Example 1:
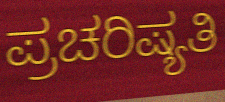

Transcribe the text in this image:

ಪ್ರಚರಿಷ್ಯತಿ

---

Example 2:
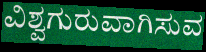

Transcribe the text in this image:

ವಿಶ್ವಗುರುವಾಗಿಸುವ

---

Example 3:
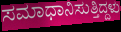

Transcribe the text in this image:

ಸಮಾಧಾನಿಸುತ್ತಿದ್ದಳು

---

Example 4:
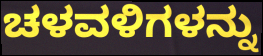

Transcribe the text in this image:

ಚಳವಳಿಗಳನ್ನು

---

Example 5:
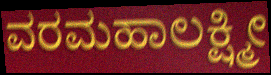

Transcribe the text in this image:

ವರಮಹಾಲಕ್ಷ್ಮೀ